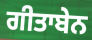
ਗੀਤਾਬੇਨ